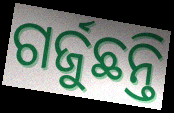
ଗର୍ଜୁଛନ୍ତି